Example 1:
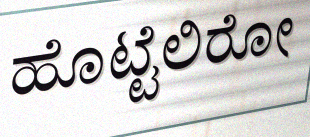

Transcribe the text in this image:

ಹೊಟ್ಟೆಲಿರೋ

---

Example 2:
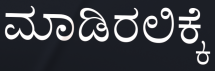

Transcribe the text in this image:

ಮಾಡಿರಲಿಕ್ಕೆ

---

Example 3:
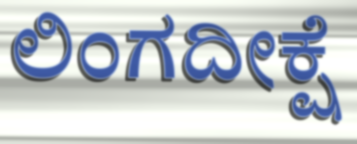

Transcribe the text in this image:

ಲಿಂಗದೀಕ್ಷೆ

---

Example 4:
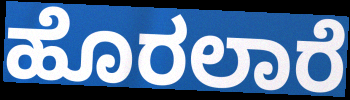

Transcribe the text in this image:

ಹೊರಲಾರೆ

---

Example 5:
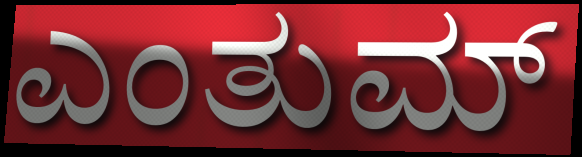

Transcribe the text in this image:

ಎಂತುಮ್